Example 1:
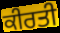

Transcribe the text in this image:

ਕੀਰਤੀ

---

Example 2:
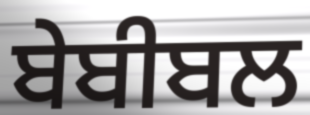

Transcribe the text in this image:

ਬੇਬੀਬਲ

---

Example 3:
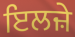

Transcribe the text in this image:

ਇਲਜ਼ੇ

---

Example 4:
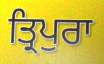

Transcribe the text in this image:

ਤ੍ਰਿਪੁਰਾ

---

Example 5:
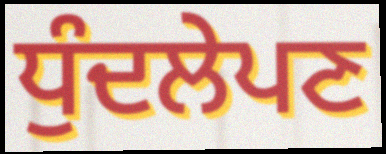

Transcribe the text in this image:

ਧੁੰਦਲੇਪਣ